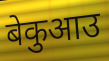
बेकुआउ